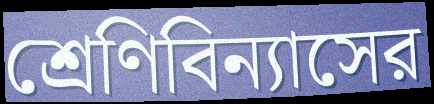
শ্রেণিবিন্যাসের